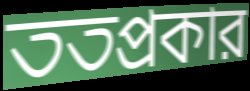
ততপ্রকার